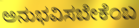
ಅನುಭವಿಸಬೇಕೆಂಬ